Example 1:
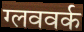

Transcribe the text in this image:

ग्लववर्क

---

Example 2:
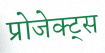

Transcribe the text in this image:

प्रोजेक्ट्स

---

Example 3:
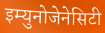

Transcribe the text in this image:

इम्युनोजेनेसिटी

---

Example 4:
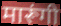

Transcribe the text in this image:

मारूंगी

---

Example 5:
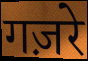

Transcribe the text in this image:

गज़रे